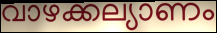
വാഴക്കല്യാണം